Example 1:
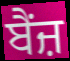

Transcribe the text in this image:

ਬੈਂਜ਼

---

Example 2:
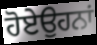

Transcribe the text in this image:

ਹੋਏਉਹਨਾਂ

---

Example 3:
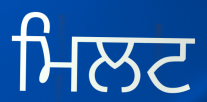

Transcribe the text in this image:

ਮਿਲਟ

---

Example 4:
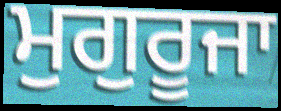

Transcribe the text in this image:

ਮੁਗੁਰੂਜਾ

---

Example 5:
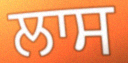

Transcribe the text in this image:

ਲਾਸ